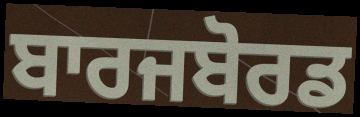
ਬਾਰਜਬੋਰਡ